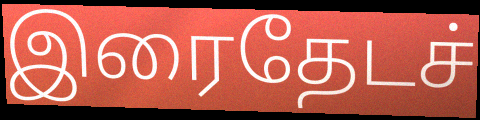
இரைதேடச்